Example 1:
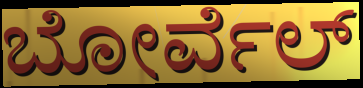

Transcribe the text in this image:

ಬೋರ್ವೆಲ್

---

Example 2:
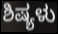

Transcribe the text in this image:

ಶಿಷ್ಯಳು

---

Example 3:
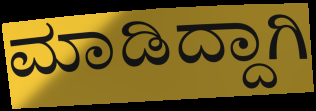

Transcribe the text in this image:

ಮಾಡಿದ್ದಾಗಿ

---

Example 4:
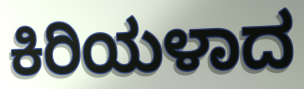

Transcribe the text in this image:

ಕಿರಿಯಳಾದ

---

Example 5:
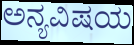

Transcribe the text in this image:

ಅನ್ಯವಿಷಯ